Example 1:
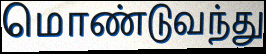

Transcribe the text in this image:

மொண்டுவந்து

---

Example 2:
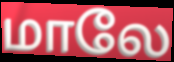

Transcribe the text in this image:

மாலே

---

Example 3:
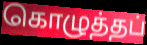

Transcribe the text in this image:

கொழுத்தப்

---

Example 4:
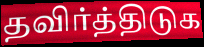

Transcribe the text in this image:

தவிர்த்திடுக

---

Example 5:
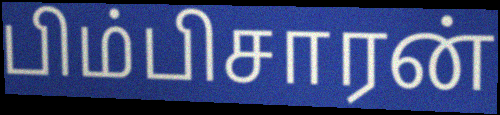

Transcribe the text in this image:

பிம்பிசாரன்